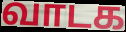
வாடக